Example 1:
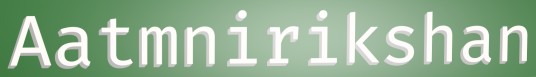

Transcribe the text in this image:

Aatmnirikshan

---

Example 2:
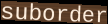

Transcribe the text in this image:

suborder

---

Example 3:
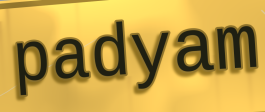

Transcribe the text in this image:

padyam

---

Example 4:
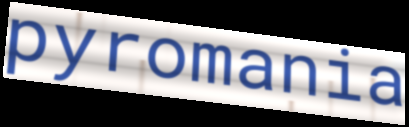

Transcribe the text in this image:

pyromania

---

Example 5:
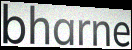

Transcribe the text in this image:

bharne